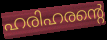
ഹരിഹരന്റെ